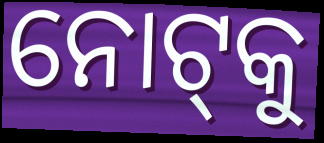
ନୋଟ୍‌କୁ